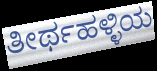
ತೀರ್ಥಹಳ್ಳಿಯ